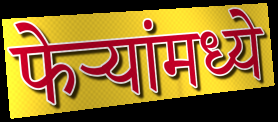
फेऱ्यांमध्ये